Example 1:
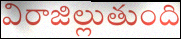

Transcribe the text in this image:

విరాజిల్లుతుంది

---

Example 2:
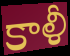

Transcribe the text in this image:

కాళీ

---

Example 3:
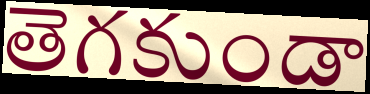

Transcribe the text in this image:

తెగకుండా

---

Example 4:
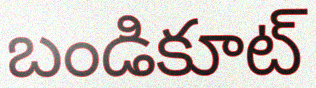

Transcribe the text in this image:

బండికూట్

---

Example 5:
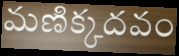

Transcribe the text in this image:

మణిక్కదవం